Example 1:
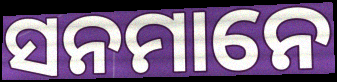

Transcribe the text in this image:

ସନମାନେ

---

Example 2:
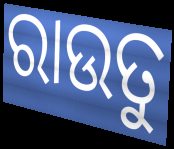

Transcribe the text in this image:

ରାଉତୁ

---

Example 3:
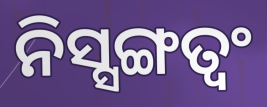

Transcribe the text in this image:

ନିସ୍ସଙ୍ଗତ୍ୱଂ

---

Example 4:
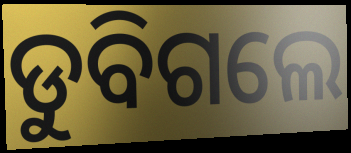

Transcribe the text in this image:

ଡୁବିଗଲେ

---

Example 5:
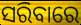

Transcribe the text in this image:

ସରିବାରେ